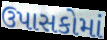
ઉપાસકોમાં